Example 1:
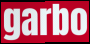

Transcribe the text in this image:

garbo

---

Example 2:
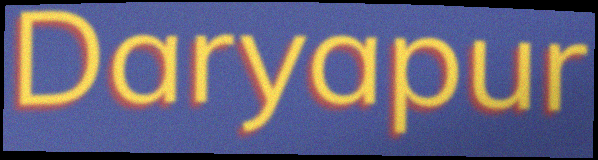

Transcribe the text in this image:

Daryapur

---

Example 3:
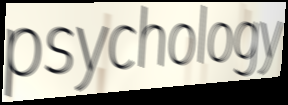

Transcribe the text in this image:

psychology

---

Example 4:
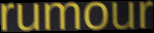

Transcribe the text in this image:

rumour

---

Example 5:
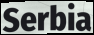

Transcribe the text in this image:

Serbia